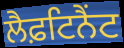
ਲੈਫ਼ਟਿਨੈਂਟ